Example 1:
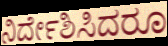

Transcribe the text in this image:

ನಿರ್ದೇಶಿಸಿದರೂ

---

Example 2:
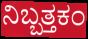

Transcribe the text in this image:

ನಿಬ್ಬತ್ತಕಂ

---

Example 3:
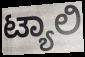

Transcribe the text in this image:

ಟ್ಯಾಲಿ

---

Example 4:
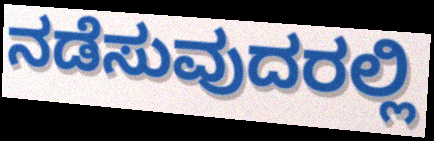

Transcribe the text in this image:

ನಡೆಸುವುದರಲ್ಲಿ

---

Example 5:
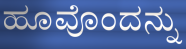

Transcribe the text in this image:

ಹೂವೊಂದನ್ನು